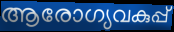
ആരോഗ്യവകുപ്പ്